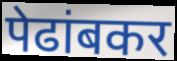
पेढांबकर